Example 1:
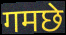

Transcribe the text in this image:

गमछे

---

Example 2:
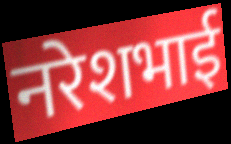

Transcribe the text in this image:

नरेशभाई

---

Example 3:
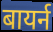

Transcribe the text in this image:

बायर्न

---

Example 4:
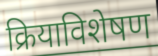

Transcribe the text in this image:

क्रियाविशेषण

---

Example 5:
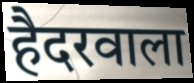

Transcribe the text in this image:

हैदरवाला